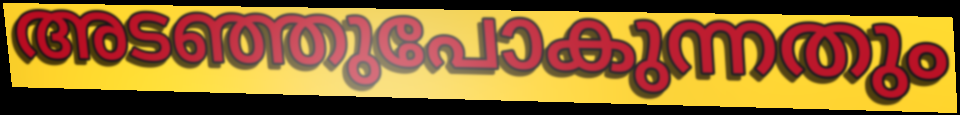
അടഞ്ഞുപോകുന്നതും